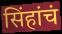
सिंहांचं